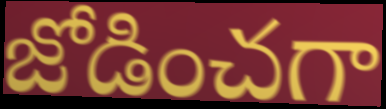
జోడించగా